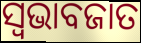
ସ୍ୱଭାବଜାତ